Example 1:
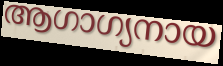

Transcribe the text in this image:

ആഗാഗ്യനായ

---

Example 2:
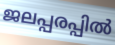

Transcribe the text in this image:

ജലപ്പരപ്പിൽ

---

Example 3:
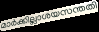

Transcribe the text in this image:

മാർക്കില്ലാശയസന്തതി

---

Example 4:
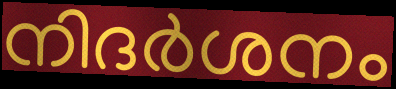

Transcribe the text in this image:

നിദർശനം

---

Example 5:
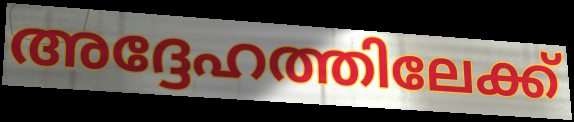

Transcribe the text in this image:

അദ്ദേഹത്തിലേക്ക്